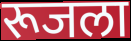
रूजला